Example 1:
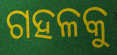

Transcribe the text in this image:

ଗହଳକୁ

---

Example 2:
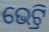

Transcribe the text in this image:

ଭେଟ୍ରି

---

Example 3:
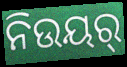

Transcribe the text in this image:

ନିଉୟର୍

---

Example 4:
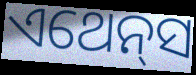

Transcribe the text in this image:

ଏଥେନ୍‌ସ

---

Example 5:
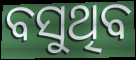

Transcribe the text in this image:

ବସୁଥିବ